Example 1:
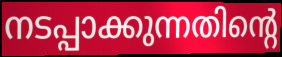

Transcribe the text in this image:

നടപ്പാക്കുന്നതിന്റെ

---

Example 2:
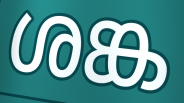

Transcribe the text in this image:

ശങ്ക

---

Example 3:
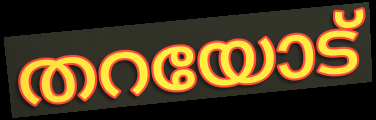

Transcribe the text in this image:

തറയോട്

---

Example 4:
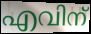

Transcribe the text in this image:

എവിന്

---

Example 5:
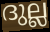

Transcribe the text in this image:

ദുല്ല